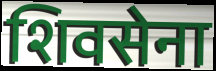
शिवसेना